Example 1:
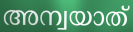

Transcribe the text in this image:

അന്വയാത്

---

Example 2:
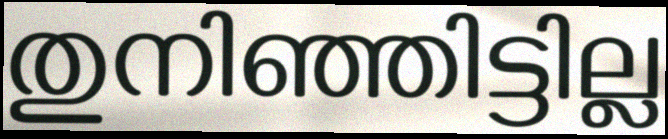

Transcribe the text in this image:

തുനിഞ്ഞിട്ടില്ല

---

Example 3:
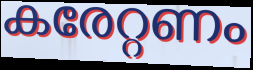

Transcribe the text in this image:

കരേറ്റണം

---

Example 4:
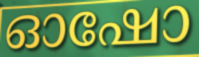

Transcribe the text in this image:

ഓഷോ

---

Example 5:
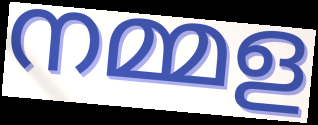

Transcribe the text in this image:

നമ്മള